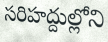
సరిహద్దుల్లోని